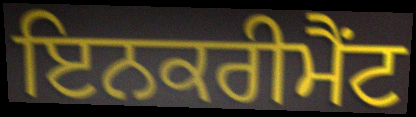
ਇਨਕਰੀਮੈਂਟ